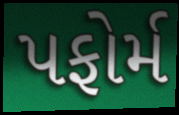
પફોર્મ